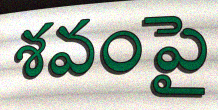
శవంపై